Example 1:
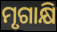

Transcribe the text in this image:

ମୃଗାକ୍ଷି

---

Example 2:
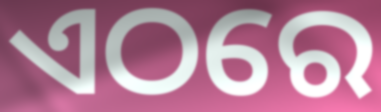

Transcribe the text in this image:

ଏଠରେ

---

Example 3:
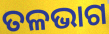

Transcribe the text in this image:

ତଳଭାଗ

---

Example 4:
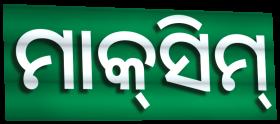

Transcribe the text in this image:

ମାକ୍‍ସିମ୍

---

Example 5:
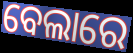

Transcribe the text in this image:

ବେଲାରେ